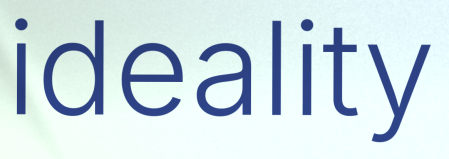
ideality